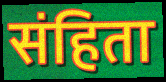
संहिता